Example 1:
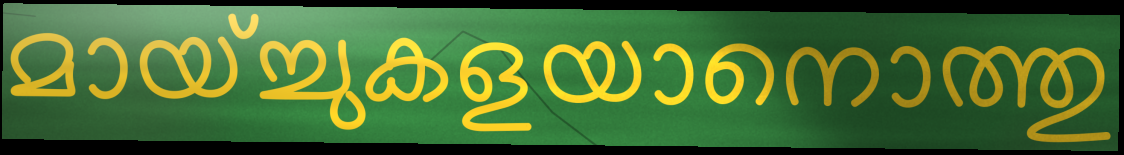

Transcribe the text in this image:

മായ്ച്ചുകളയാനൊത്തു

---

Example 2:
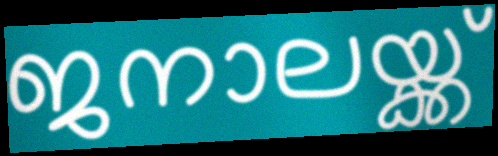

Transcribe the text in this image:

ജനാലയ്ക്ക്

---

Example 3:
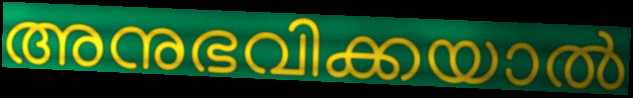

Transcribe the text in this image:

അനുഭവിക്കയാൽ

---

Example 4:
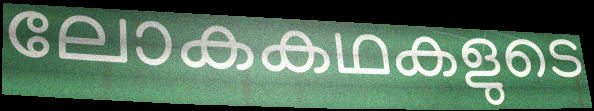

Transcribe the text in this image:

ലോകകഥകളുടെ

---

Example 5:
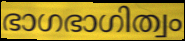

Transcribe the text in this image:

ഭാഗഭാഗിത്വം